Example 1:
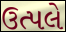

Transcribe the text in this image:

ઉત્પલે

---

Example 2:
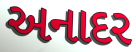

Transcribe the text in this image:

અનાદર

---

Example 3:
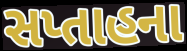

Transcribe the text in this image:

સપ્તાહના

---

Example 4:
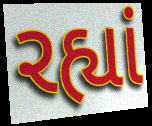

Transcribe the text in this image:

રહ્યાં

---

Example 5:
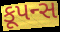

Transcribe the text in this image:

કૂપન્સ